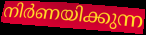
നിർണയിക്കുന്ന